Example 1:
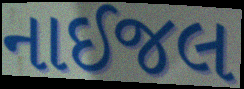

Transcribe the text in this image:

નાઈજલ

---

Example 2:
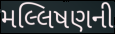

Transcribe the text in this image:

મલ્લિષણની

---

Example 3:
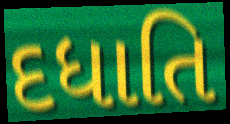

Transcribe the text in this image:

દધાતિ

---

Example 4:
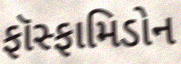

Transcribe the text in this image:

ફૉસ્ફામિડોન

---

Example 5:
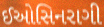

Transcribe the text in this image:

ઈઓસિનરાગી